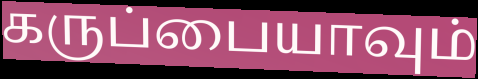
கருப்பையாவும்